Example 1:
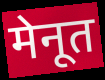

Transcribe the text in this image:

मेनूत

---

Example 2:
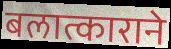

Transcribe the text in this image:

बलात्काराने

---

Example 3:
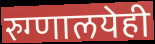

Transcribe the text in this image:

रुग्णालयेही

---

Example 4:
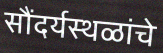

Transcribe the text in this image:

सौंदर्यस्थळांचे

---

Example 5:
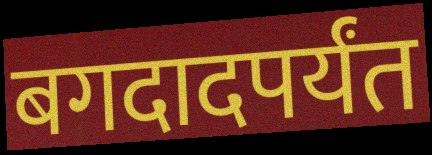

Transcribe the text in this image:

बगदादपर्यंत